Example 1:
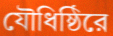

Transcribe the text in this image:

যৌধিষ্ঠিরে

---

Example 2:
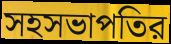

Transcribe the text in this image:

সহসভাপতির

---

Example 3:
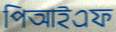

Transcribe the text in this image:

পিআইএফ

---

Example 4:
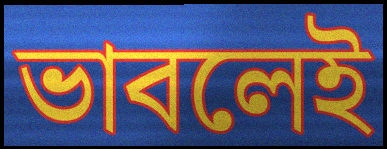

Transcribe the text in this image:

ভাবলেই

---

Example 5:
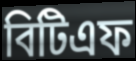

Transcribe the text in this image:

বিটিএফ